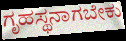
ಗೃಹಸ್ಥನಾಗಬೇಕು